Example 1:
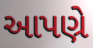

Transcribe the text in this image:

આપણ્રે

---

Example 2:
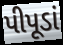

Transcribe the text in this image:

પીપૂડાં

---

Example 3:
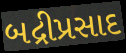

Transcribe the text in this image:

બદ્રીપ્રસાદ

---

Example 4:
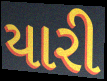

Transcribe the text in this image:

યારી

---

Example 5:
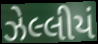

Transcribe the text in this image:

ઝેલ્લીયં